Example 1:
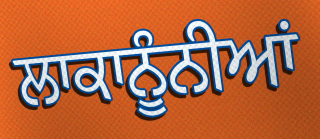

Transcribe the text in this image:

ਲਾਕਾਨੂੰਨੀਆਂ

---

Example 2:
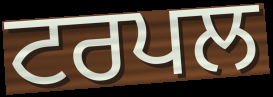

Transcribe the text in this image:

ਟਰਪਲ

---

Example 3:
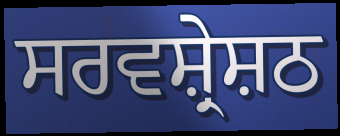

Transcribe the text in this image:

ਸਰਵਸ਼੍ਰੇਸ਼ਠ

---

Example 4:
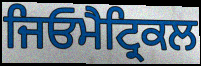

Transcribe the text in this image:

ਜਿਓਮੈਟ੍ਰਿਕਲ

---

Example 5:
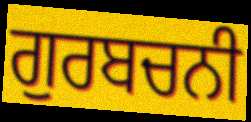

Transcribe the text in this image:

ਗੁਰਬਚਨੀ